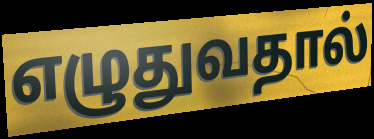
எழுதுவதால்